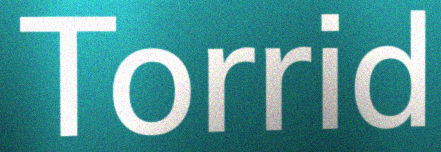
Torrid